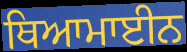
ਥਿਆਮਾਈਨ